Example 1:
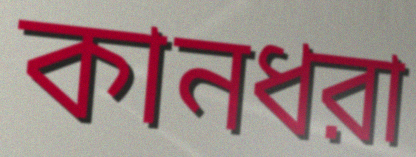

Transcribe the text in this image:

কানধরা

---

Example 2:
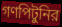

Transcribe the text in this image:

গণপিটুনির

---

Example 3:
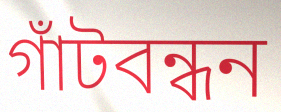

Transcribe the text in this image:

গাঁটবন্ধন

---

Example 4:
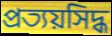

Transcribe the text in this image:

প্রত্যয়সিদ্ধ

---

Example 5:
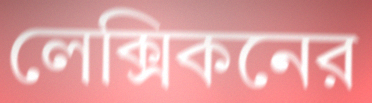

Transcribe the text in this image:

লেক্সিকনের